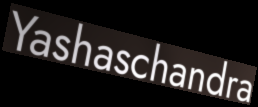
Yashaschandra